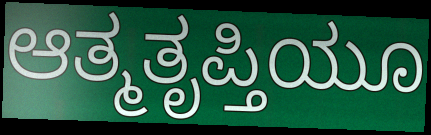
ಆತ್ಮತೃಪ್ತಿಯೂ